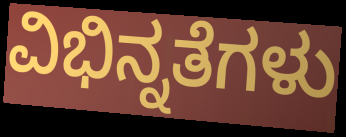
ವಿಭಿನ್ನತೆಗಳು